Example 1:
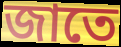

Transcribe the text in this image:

জাতে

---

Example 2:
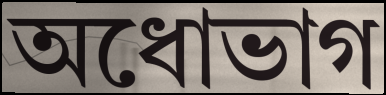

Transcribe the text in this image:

অধোভাগ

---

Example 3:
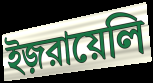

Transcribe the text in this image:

ইজ়রায়েলি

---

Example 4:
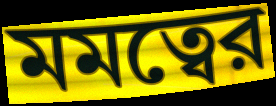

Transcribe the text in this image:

মমত্বের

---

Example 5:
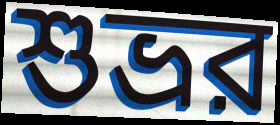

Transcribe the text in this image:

শুভ্রর